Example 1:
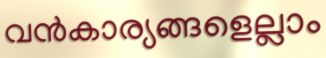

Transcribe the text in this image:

വൻകാര്യങ്ങളെല്ലാം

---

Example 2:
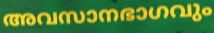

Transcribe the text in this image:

അവസാനഭാഗവും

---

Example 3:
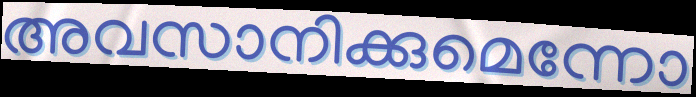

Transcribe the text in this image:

അവസാനിക്കുമെന്നോ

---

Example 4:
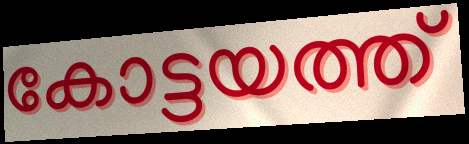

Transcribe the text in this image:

കോട്ടയത്ത്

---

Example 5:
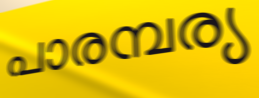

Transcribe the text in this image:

പാരമ്പര്യ